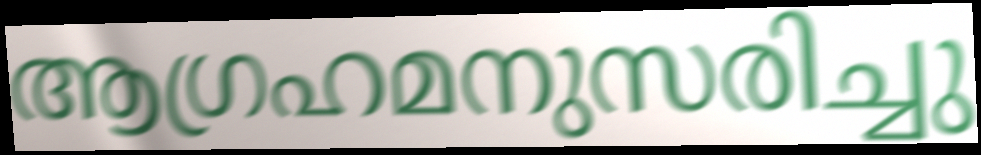
ആഗ്രഹമനുസരിച്ചു